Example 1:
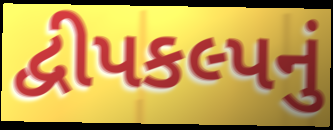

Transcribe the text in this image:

દ્વીપકલ્પનું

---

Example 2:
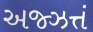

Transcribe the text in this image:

અજ્ઝત્તં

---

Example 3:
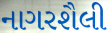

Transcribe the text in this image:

નાગરશૈલી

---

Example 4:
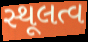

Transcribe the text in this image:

સ્થૂલત્વ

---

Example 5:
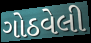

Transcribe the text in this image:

ગોઠવેલી